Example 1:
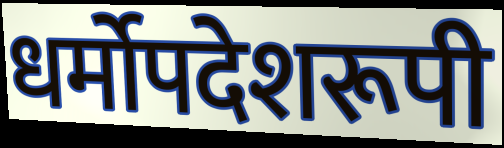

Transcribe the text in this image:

धर्मोपदेशरूपी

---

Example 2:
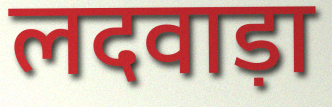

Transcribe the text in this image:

लदवाड़ा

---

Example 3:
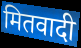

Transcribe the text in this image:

मितवादी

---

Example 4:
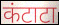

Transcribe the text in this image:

कंटाटा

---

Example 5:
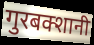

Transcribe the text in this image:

गुरबक्शानी